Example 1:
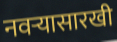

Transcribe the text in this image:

नवऱ्यासारखी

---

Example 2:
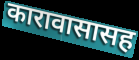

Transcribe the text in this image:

कारावासासह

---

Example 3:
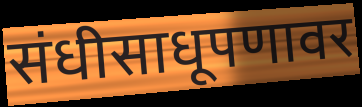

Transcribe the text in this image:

संधीसाधूपणावर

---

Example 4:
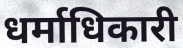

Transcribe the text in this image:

धर्माधिकारी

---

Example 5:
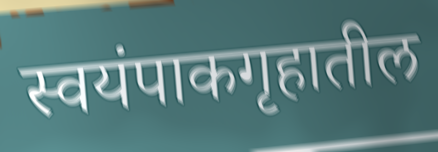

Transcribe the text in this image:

स्वयंपाकगृहातील